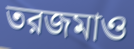
তরজমাও